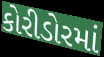
કોરીડોરમાં